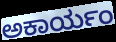
ಅಕಾರ್ಯಂ